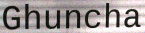
Ghuncha